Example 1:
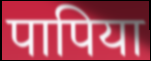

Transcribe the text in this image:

पापिया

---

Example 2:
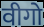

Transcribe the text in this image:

वीगो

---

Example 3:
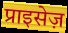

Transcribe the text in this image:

प्राइसेज़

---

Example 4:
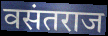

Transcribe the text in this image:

वसंतराज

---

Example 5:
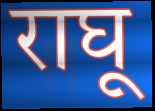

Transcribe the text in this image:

राघू